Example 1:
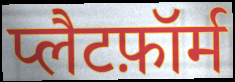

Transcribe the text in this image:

प्लैटफ़ॉर्म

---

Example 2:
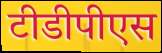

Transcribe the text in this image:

टीडीपीएस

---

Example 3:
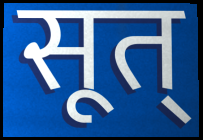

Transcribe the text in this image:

सूत्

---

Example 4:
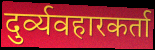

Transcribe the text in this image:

दुर्व्यवहारकर्ता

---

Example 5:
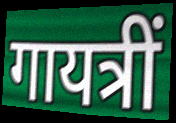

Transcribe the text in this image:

गायत्रीं